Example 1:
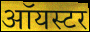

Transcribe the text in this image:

ऑयस्टर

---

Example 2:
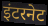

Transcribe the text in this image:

इंटरनेट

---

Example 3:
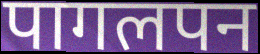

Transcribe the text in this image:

पागलपन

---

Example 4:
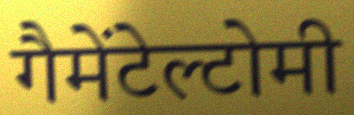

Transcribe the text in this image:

गैमेंटेल्टोमी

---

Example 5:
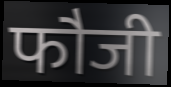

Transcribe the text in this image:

फौजी